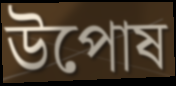
উপোষ